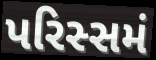
પરિસ્સમં